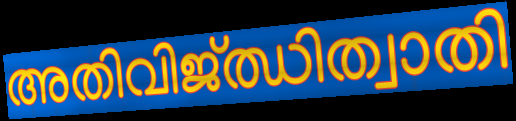
അതിവിജ്ഝിത്വാതി